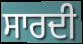
ਸਾਰਦੀ